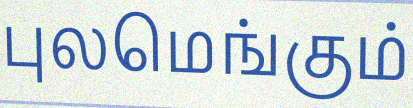
புலமெங்கும்